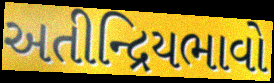
અતીન્દ્રિયભાવો